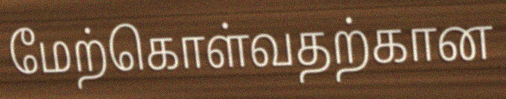
மேற்கொள்வதற்கான